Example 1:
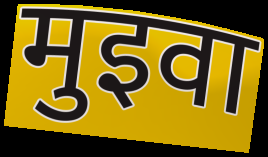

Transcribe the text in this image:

मुइवा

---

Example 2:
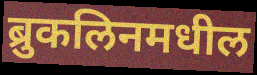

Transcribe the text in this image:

ब्रुकलिनमधील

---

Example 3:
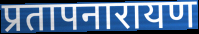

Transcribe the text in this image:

प्रतापनारायण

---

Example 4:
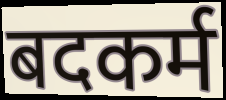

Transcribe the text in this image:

बदकर्म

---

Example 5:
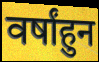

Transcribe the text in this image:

वर्षांहुन